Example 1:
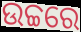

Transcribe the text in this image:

ଉଚ୍ଚରେ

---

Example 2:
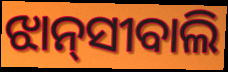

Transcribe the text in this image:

ଝାନ୍‌ସୀବାଲି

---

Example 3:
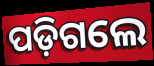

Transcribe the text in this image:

ପଡ଼ିଗଲେ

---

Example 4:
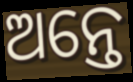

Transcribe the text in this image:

ଅନ୍ତେ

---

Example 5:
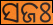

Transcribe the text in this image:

ସଜଃ